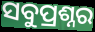
ସବୁପ୍ରଶ୍ନର